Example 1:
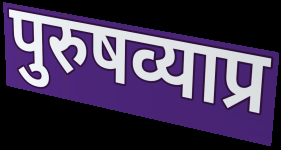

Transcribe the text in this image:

पुरुषव्याप्र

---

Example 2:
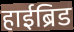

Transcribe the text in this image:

हाईब्रिड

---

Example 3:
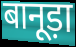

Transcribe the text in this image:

बानूड़ा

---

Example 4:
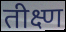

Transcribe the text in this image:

तीक्ष्ण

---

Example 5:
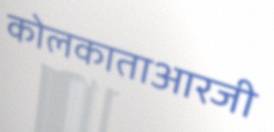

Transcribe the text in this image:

कोलकाताआरजी